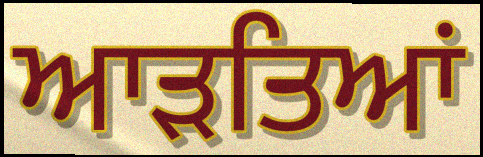
ਆੜਤਿਆਂ